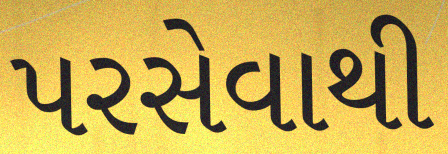
પરસેવાથી